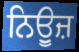
ਨਿਉੂਜ਼